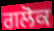
ਗਲੋਕ